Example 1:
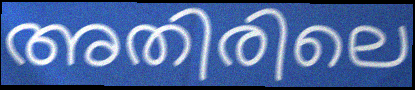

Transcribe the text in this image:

അതിരിലെ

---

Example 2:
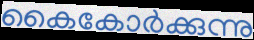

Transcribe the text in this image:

കൈകോർക്കുന്നു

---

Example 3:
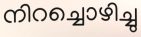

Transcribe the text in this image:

നിറച്ചൊഴിച്ചു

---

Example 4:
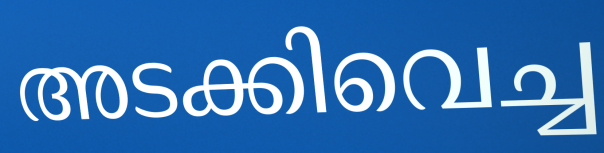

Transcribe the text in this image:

അടക്കിവെച്ച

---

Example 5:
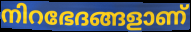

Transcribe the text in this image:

നിറഭേദങ്ങളാണ്